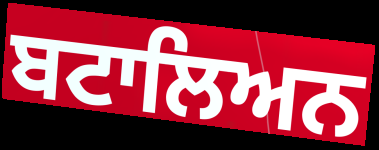
ਬਟਾਲਿਅਨ